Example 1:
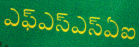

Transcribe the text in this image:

ఎఫ్ఎస్ఎస్ఏఐ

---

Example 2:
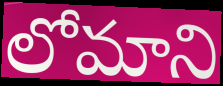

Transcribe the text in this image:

లోమాని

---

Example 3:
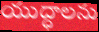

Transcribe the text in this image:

యుద్ధాలను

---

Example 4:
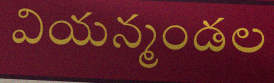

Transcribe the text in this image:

వియన్మండల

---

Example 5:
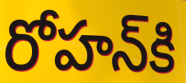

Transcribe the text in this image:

రోహన్‌కి